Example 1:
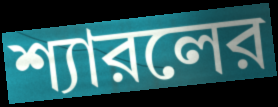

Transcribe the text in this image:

শ্যারলের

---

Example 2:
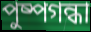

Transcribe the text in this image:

পুষ্পগন্ধা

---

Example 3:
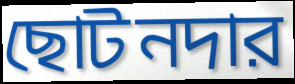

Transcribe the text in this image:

ছোটনদার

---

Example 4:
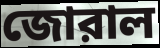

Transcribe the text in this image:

জোরাল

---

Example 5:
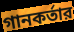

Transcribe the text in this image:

গানকর্তার